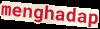
menghadap